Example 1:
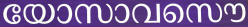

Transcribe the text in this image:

യോസാവസൌ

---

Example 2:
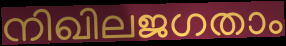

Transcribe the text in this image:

നിഖിലജഗതാം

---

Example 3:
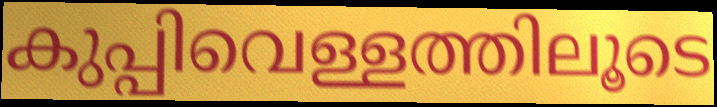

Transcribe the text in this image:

കുപ്പിവെള്ളത്തിലൂടെ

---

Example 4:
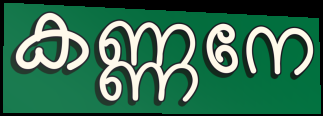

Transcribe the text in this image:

കണ്ണനേ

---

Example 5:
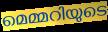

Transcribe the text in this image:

മെമ്മറിയുടെ